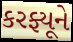
કરફ્યૂને